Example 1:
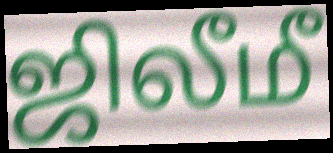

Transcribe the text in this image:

ஜிலீமீ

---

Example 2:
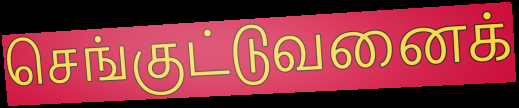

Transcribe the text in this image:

செங்குட்டுவனைக்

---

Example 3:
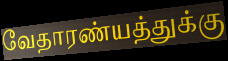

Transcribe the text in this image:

வேதாரண்யத்துக்கு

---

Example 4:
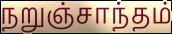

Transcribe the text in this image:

நறுஞ்சாந்தம்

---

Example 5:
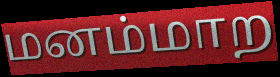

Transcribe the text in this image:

மனம்மாற